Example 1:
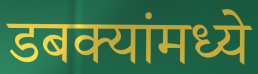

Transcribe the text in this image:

डबक्यांमध्ये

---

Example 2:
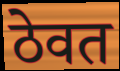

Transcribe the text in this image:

ठेवत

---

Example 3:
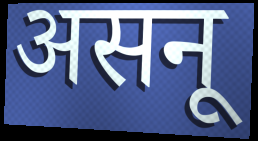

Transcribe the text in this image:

असनू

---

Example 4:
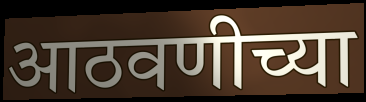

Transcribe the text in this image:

आठवणीच्या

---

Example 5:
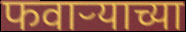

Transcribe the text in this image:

फवाऱ्याच्या